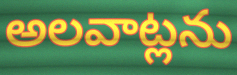
అలవాట్లను